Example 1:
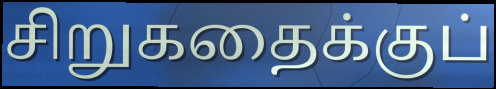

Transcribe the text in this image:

சிறுகதைக்குப்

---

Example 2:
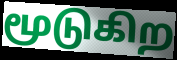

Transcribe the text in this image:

மூடுகிற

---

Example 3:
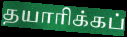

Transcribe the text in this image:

தயாரிக்கப்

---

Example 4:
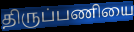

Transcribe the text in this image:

திருப்பணியை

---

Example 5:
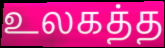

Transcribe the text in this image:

உலகத்த